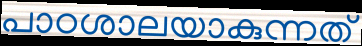
പാഠശാലയാകുന്നത്